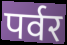
पर्वर